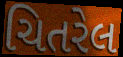
ચિતરેલ